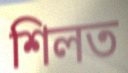
শিলত